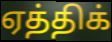
ஏத்திக்